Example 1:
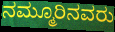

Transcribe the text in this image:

ನಮ್ಮೂರಿನವರು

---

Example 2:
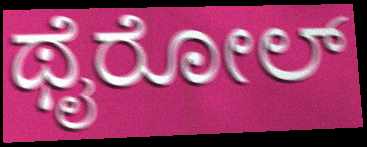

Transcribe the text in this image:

ಥೈರೋಲ್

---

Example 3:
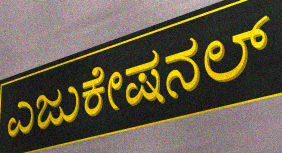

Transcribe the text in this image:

ಎಜುಕೇಷನಲ್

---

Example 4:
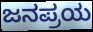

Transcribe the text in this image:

ಜನಪ್ರಯ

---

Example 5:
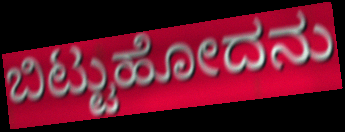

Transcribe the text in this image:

ಬಿಟ್ಟುಹೋದನು